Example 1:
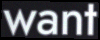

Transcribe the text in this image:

want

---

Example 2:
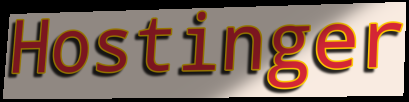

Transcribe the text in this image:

Hostinger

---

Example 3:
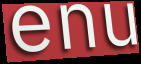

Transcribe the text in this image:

enu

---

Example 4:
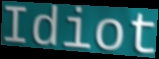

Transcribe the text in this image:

Idiot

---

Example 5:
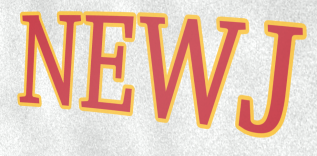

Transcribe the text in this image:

NEWJ